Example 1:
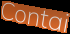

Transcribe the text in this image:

Contai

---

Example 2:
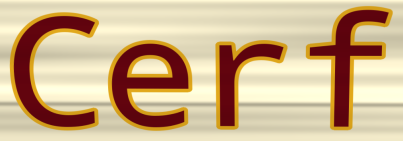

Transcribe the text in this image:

Cerf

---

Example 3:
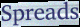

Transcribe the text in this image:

Spreads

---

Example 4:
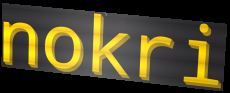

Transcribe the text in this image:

nokri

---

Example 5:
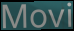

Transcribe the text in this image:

Movi